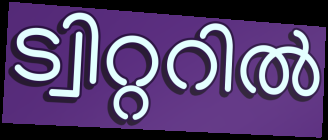
ട്വിറ്ററിൽ